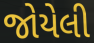
જોયેલી